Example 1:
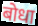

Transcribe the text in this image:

बोधा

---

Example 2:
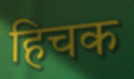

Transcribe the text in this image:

हिचक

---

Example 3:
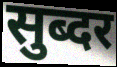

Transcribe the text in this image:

सुब्दर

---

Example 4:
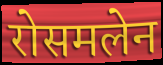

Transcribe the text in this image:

रोसमलेन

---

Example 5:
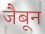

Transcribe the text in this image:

जैबून